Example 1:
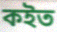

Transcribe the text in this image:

কইত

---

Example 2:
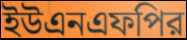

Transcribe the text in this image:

ইউএনএফপির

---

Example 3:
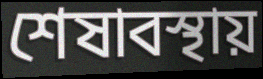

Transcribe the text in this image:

শেষাবস্থায়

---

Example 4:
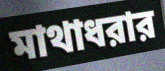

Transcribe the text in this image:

মাথাধরার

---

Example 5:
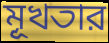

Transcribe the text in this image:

মূখতার